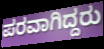
ಪರವಾಗಿದ್ದರು